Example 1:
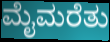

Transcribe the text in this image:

ಮೈಮರೆತು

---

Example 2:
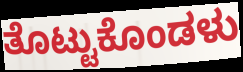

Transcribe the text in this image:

ತೊಟ್ಟುಕೊಂಡಳು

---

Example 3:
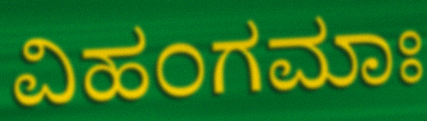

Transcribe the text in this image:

ವಿಹಂಗಮಾಃ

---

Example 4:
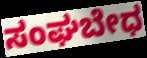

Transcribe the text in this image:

ಸಂಘಬೇಧ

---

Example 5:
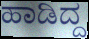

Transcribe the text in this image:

ಹಾಡಿದ್ದ